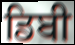
ਡਿਬੀ